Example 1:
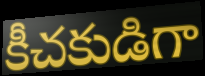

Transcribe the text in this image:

కీచకుడిగా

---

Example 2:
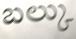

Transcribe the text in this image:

బల్కు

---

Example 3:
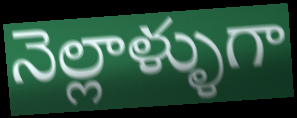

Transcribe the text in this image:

నెల్లాళ్ళుగా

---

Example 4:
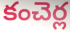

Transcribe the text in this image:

కంచెర్ల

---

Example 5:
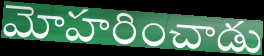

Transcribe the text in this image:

మోహరించాడు